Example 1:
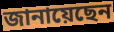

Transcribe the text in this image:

জানায়েছেন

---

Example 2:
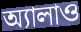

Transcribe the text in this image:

অ্যালাও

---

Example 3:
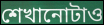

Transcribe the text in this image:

শেখানোটাও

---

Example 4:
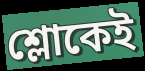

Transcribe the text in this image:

শ্লোকেই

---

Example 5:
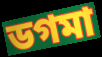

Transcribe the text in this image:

ডগমা